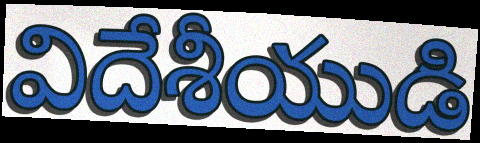
విదేశీయుడి